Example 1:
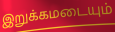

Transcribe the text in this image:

இறுக்கமடையும்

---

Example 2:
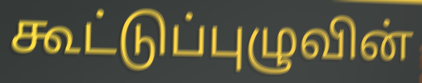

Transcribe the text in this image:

கூட்டுப்புழுவின்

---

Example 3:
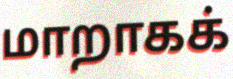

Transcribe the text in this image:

மாறாகக்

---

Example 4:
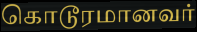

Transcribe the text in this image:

கொடூரமானவர்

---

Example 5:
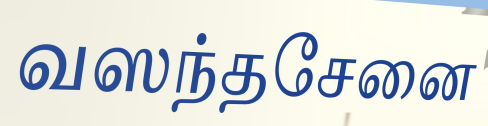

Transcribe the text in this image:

வஸந்தசேனை